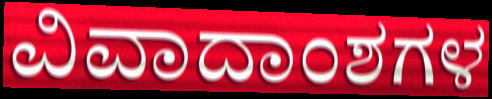
ವಿವಾದಾಂಶಗಳ